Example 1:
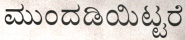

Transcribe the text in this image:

ಮುಂದಡಿಯಿಟ್ಟರೆ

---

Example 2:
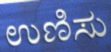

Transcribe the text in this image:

ಉಣಿಸು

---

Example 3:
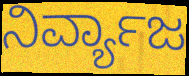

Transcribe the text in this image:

ನಿರ್ವ್ಯಾಜ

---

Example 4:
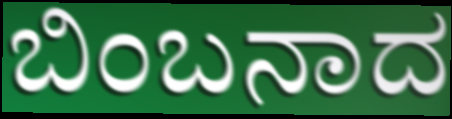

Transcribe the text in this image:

ಬಿಂಬನಾದ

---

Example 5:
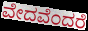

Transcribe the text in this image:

ವೇದವೆಂದರೆ